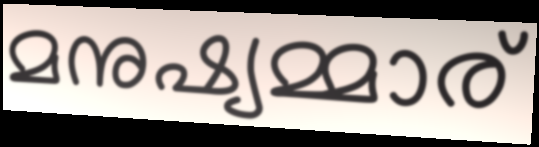
മനുഷ്യമ്മാര്